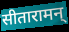
सीतारामन्